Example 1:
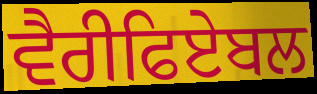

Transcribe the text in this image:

ਵੈਰੀਫਿਏਬਲ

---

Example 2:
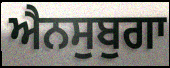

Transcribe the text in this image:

ਐਨਸੁਬੁਗਾ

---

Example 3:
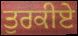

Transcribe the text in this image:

ਤੁਰਕੀਏ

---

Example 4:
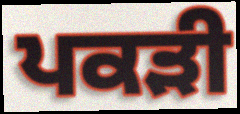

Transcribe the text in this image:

ਪਕੜੀ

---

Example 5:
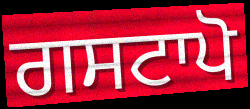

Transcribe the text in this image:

ਗਸਟਾਪੋ